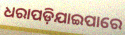
ଧରାପଡ଼ିଯାଇପାରେ